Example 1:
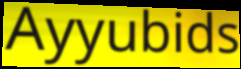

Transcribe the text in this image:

Ayyubids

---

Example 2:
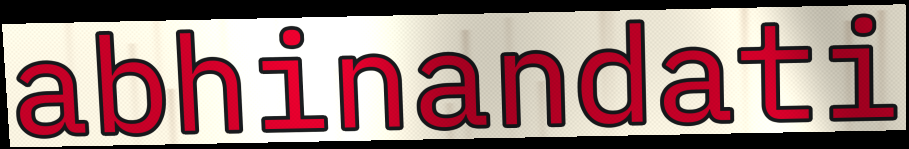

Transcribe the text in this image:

abhinandati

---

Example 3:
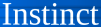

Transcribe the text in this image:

Instinct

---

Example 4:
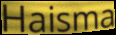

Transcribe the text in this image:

Haisma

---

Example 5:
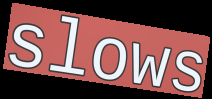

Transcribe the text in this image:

slows